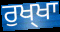
ਰੁਖ੍ਖਾ